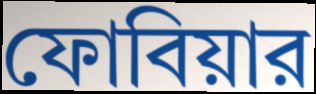
ফোবিয়ার